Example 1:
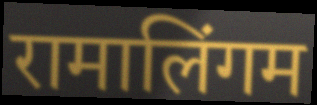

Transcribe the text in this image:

रामालिंगम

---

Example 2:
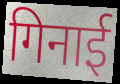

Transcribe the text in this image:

गिनाई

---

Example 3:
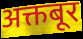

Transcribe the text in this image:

अक्तबूर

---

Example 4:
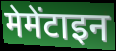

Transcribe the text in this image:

मेमेंटाइन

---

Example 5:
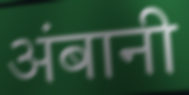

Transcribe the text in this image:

अंबानी